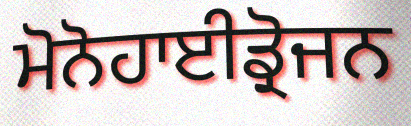
ਮੋਨੋਹਾਈਡ੍ਰੋਜਨ